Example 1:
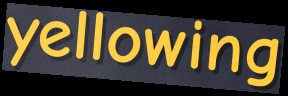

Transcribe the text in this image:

yellowing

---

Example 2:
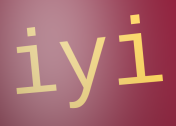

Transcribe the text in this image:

iyi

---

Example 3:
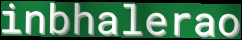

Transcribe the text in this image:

inbhalerao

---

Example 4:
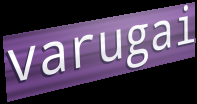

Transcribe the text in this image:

varugai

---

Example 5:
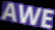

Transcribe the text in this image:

AWE